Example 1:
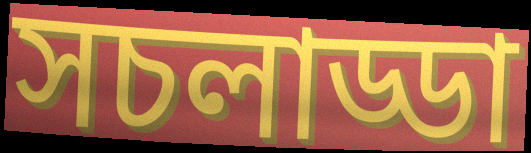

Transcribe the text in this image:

সচলাড্ডা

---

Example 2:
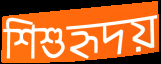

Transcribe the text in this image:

শিশুহৃদয়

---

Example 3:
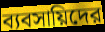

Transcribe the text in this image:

ব্যবসায়িদের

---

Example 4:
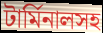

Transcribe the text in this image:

টার্মিনালসহ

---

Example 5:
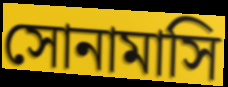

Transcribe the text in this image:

সোনামাসি